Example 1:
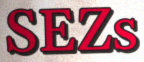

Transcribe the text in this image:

SEZs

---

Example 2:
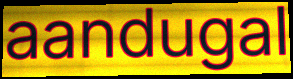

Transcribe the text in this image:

aandugal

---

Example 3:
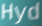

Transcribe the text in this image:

Hyd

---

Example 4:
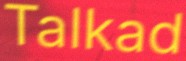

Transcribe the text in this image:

Talkad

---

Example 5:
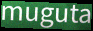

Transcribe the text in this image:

muguta